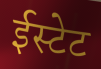
ईस्टेट